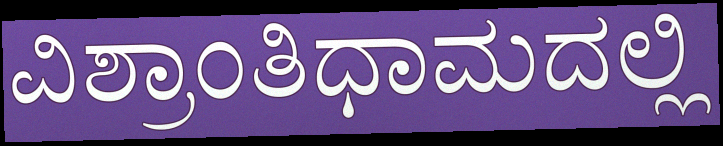
ವಿಶ್ರಾಂತಿಧಾಮದಲ್ಲಿ